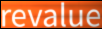
revalue